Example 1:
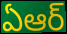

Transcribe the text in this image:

ఏఆర్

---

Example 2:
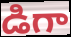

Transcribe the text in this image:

డిగా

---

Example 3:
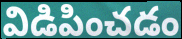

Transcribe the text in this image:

విడిపించడం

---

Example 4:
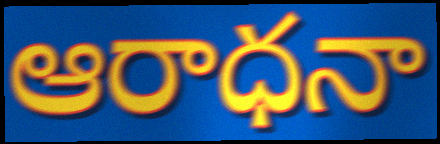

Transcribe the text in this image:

ఆరాధనా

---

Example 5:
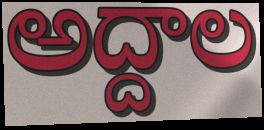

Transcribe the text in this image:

అద్దాల